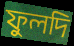
ফুলদি